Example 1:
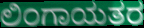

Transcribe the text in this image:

ಲಿಂಗಾಯತರ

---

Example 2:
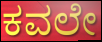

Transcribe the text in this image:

ಕವಲೇ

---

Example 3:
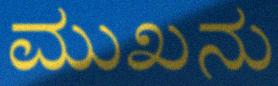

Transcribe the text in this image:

ಮುಖನು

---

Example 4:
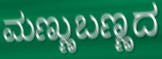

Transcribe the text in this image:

ಮಣ್ಣುಬಣ್ಣದ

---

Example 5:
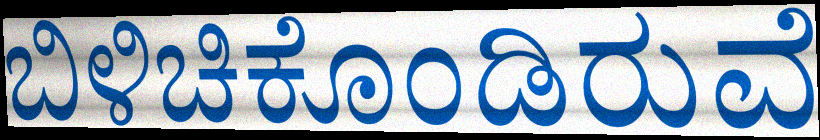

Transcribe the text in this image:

ಬಿಳಿಚಿಕೊಂಡಿರುವೆ